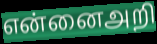
என்னைஅறி